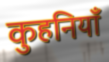
कुहनियाँ